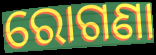
ରୋଗଣା